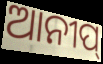
ଆନୀପ୍